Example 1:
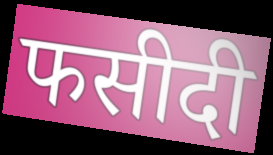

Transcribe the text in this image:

फसीदी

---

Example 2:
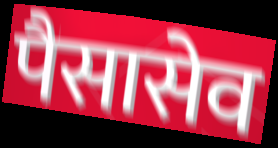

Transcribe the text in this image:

पैसासेव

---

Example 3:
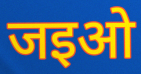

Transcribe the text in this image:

जइओ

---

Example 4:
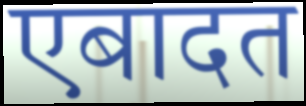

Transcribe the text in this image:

एबादत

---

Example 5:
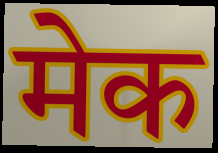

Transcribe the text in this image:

मेक